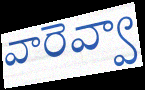
వారెవ్వా